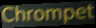
Chrompet